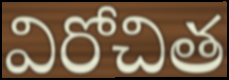
విరోచిత